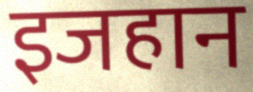
इजहान